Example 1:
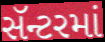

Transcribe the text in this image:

સૅન્ટરમાં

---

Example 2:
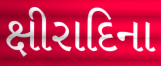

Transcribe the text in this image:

ક્ષીરાદિના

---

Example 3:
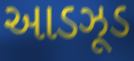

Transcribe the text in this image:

આડઝૂડ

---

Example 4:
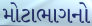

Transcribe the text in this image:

મોટાભાગનો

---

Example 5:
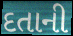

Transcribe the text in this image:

દતાની